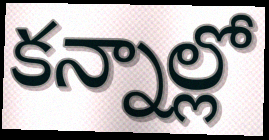
కన్నాల్లో